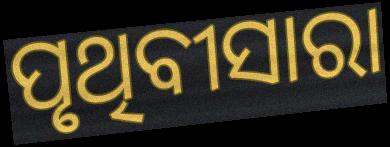
ପୃଥିବୀସାରା